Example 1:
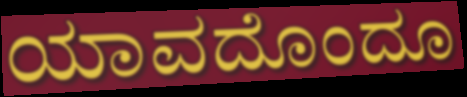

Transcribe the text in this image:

ಯಾವದೊಂದೂ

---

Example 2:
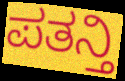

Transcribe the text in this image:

ಪತನ್ತಿ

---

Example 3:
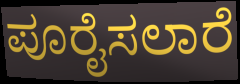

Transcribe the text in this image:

ಪೂರೈಸಲಾರೆ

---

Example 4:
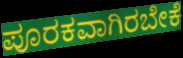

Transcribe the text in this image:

ಪೂರಕವಾಗಿರಬೇಕೆ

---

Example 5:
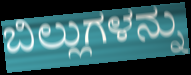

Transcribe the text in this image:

ಬಿಲ್ಲುಗಳನ್ನು